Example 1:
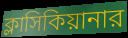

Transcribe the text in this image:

ক্লাসিকিয়ানার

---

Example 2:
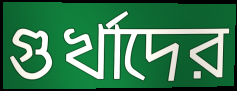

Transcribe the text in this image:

গুর্খাদের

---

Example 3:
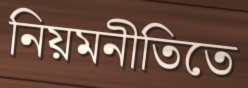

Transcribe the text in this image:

নিয়মনীতিতে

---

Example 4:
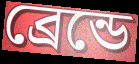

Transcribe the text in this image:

ব্রেন্ডে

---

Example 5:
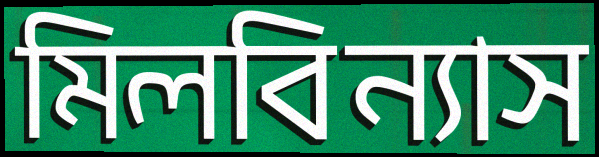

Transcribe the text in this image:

মিলবিন্যাস